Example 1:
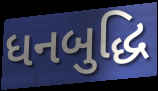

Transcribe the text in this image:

ધનબુદ્ધિ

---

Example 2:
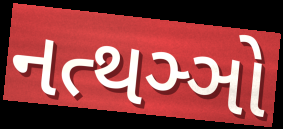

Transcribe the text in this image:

નત્થઞ્ઞો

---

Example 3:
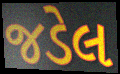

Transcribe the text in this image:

જડેલ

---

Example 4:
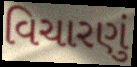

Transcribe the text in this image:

વિચારણું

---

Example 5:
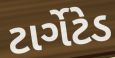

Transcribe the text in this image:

ટાર્ગેટેડ